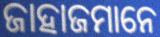
ଜାହାଜମାନେ